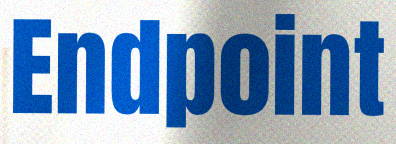
Endpoint